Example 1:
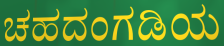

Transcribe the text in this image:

ಚಹದಂಗಡಿಯ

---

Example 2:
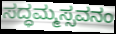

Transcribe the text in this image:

ಸದ್ಧಮ್ಮಸ್ಸವನಂ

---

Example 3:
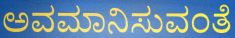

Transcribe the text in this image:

ಅವಮಾನಿಸುವಂತೆ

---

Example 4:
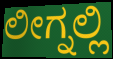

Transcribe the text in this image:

ಲೀಗ್ನಲ್ಲಿ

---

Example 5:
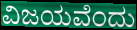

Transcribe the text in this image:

ವಿಜಯವೆಂದು